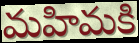
మహిమకి